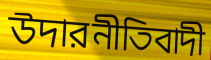
উদারনীতিবাদী